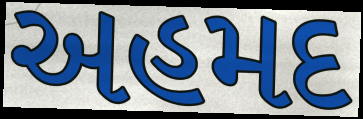
અહમદ